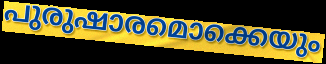
പുരുഷാരമൊക്കെയും